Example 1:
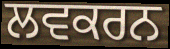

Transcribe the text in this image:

ਲਵਕਰਨ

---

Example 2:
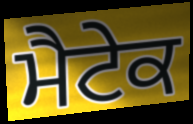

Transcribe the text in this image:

ਮੈਟੇਕ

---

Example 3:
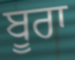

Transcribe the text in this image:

ਬੂਰਾ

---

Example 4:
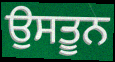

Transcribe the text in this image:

ਉਸਤੂਨ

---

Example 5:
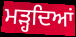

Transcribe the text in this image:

ਮੜ੍ਹਦਿਆਂ